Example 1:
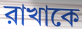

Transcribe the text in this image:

রাখাকে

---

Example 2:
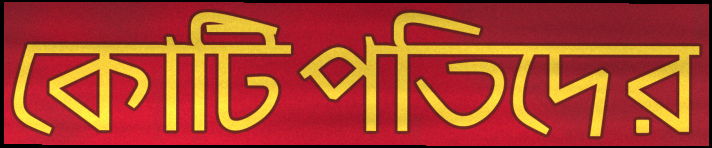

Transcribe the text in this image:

কোটিপতিদের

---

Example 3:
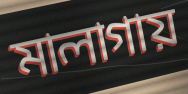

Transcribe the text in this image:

মালাগায়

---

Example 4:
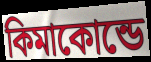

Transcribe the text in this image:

কিমাকোন্ডে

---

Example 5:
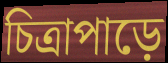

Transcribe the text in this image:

চিত্রাপাড়ে